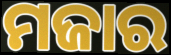
ମଜାର